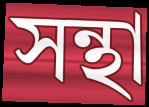
সন্থা